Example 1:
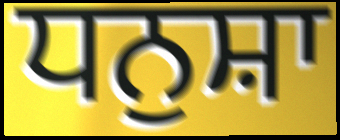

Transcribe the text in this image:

ਧਨੁਸ਼ਾ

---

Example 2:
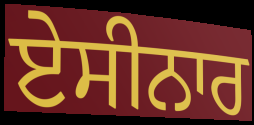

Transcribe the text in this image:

ਏਸੀਨਾਰ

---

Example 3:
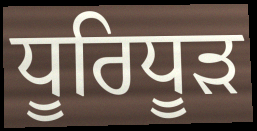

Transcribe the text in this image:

ਧੂਰਿਧੂੜ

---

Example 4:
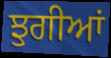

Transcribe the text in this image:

ਝੁਗੀਆਂ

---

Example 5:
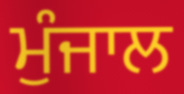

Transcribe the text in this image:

ਮੁੰਜਾਲ